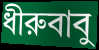
ধীরুবাবু